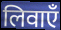
लिवाएँ